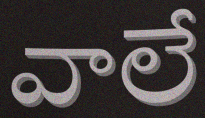
వాలే